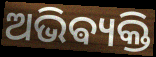
ଅଭିଵ୍ୟକ୍ତି